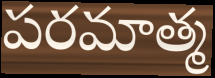
పరమాత్మ